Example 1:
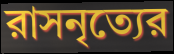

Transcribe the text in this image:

রাসনৃত্যের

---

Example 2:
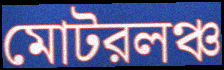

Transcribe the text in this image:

মোটরলঞ্চ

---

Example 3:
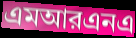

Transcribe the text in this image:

এমআরএনএ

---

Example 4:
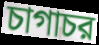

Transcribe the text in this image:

চাগাচর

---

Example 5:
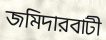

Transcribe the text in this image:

জমিদারবাটী